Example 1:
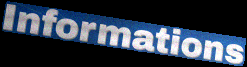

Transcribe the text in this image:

Informations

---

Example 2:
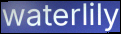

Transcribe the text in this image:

waterlily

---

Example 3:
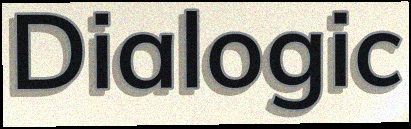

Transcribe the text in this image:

Dialogic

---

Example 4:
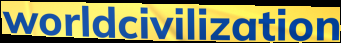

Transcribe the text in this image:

worldcivilization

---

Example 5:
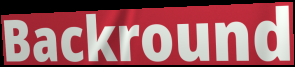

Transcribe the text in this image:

Backround